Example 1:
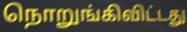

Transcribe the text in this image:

நொறுங்கிவிட்டது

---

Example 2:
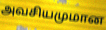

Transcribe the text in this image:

அவசியமுமான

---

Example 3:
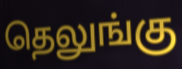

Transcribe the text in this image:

தெலுங்கு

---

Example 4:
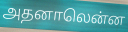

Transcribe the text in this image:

அதனாலென்ன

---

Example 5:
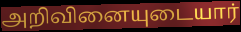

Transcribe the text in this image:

அறிவினையுடையார்